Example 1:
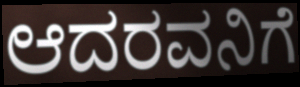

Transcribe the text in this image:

ಆದರವನಿಗೆ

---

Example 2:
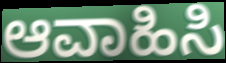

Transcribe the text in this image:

ಆವಾಹಿಸಿ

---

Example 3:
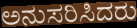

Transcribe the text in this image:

ಅನುಸರಿಸಿದರು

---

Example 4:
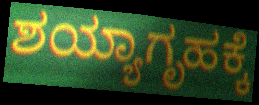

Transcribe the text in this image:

ಶಯ್ಯಾಗೃಹಕ್ಕೆ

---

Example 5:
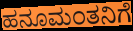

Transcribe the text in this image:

ಹನೂಮಂತನಿಗೆ